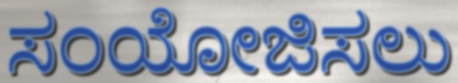
ಸಂಯೋಜಿಸಲು